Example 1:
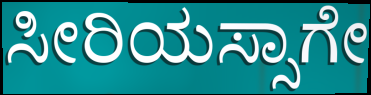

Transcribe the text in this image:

ಸೀರಿಯಸ್ಸಾಗೇ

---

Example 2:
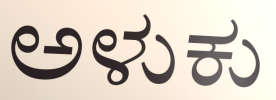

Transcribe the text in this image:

ಅಳುಕು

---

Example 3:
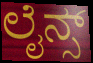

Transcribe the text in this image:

ಲೈನ್ಸ್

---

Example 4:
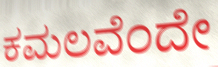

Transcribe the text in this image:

ಕಮಲವೆಂದೇ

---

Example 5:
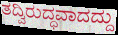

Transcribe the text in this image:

ತದ್ವಿರುದ್ಧವಾದದ್ದು